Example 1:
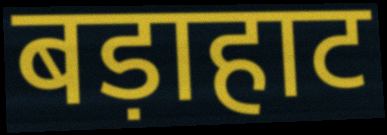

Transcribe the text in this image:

बड़ाहाट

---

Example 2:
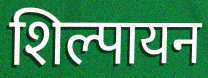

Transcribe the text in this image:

शिल्पायन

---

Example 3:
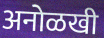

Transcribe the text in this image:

अनोळखी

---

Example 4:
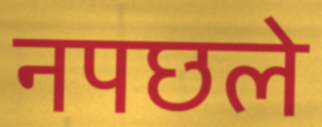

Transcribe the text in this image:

नपछले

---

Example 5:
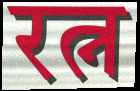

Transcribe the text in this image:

रत्न